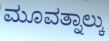
ಮೂವತ್ನಾಲ್ಕು